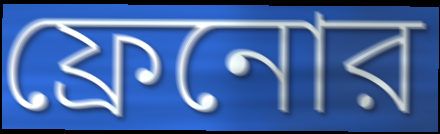
ফ্রেনোর